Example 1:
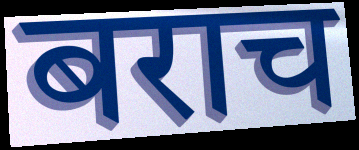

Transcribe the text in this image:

बराच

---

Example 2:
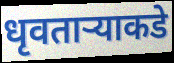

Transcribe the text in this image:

धृवतार्‍याकडे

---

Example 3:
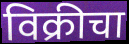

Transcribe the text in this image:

विक्रीचा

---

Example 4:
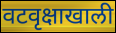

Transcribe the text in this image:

वटवृक्षाखाली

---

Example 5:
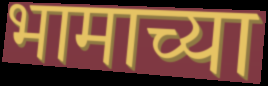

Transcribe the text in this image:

भामाच्या